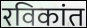
रविकांत